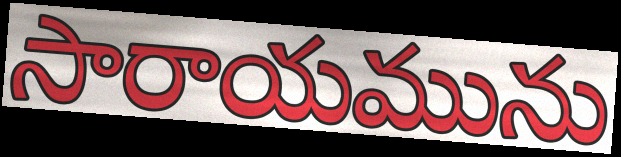
సారాయమును